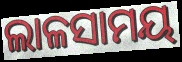
ଲାଳସାମୟ